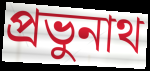
প্রভুনাথ